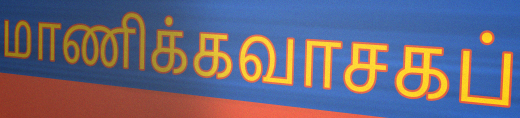
மாணிக்கவாசகப்